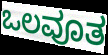
ಒಲವೂತ